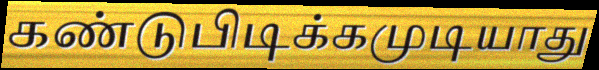
கண்டுபிடிக்கமுடியாது